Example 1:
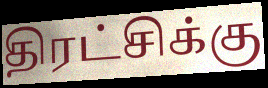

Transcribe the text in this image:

திரட்சிக்கு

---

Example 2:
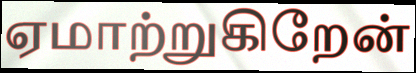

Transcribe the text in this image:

ஏமாற்றுகிறேன்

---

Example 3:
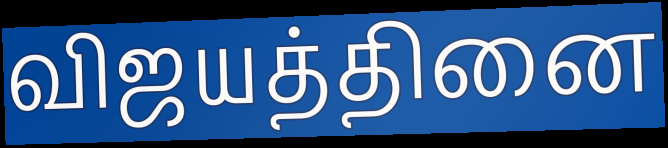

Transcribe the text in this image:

விஜயத்தினை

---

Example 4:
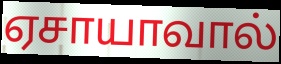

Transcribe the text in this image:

ஏசாயாவால்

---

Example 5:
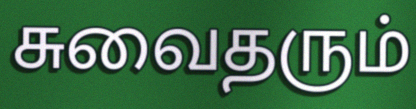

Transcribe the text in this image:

சுவைதரும்